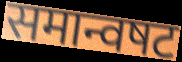
समान्वषट